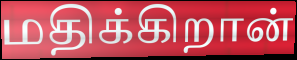
மதிக்கிறான்